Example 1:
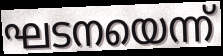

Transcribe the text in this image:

ഘടനയെന്ന്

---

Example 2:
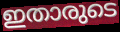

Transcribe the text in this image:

ഇതാരുടെ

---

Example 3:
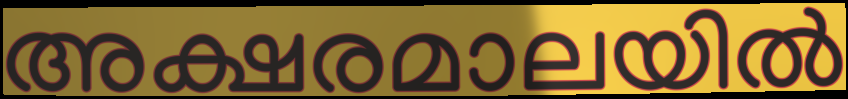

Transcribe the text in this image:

അക്ഷരമാലയിൽ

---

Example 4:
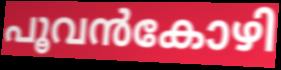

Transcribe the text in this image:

പൂവൻകോഴി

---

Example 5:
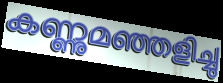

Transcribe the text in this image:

കണ്ണുമഞ്ഞളിച്ചു